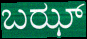
ಬಝ್